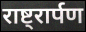
राष्ट्रार्पण